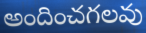
అందించగలవు